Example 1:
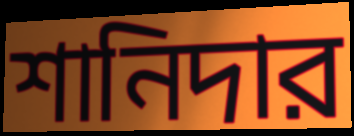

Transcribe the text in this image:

শানিদার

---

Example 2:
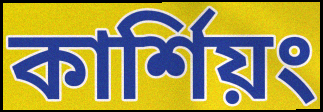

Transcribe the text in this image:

কার্শিয়ং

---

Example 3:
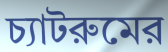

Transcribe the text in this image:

চ্যাটরুমের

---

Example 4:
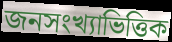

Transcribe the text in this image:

জনসংখ্যাভিত্তিক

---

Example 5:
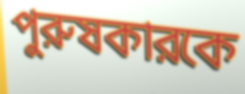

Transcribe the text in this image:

পুরুষকারকে